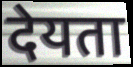
देयता